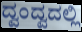
ದ್ವಂದ್ವದಲ್ಲಿ